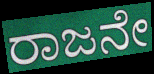
ರಾಜನೇ